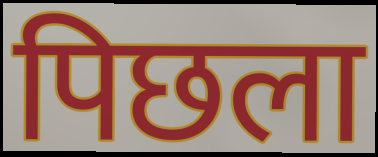
पिछला